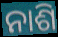
ନାଶି